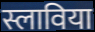
स्लाविया